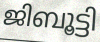
ജിബൂട്ടി